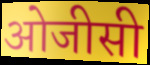
ओजीसी